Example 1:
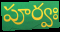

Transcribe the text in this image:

పూర్వః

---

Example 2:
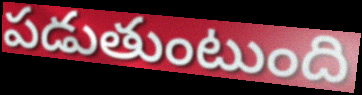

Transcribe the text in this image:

పడుతుంటుంది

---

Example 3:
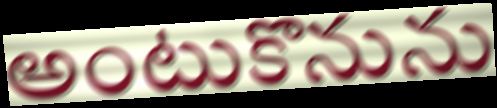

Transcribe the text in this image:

అంటుకొనును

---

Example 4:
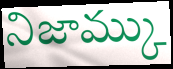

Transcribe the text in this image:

నిజామ్కు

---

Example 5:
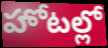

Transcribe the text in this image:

హోటల్లో